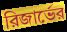
রিজার্ভের